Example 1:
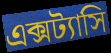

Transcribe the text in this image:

এক্সট্যাসি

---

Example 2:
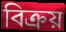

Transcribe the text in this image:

বিক্রয়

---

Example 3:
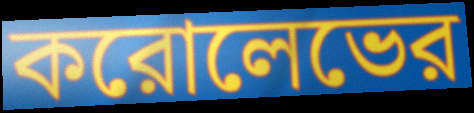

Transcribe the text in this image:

করোলেভের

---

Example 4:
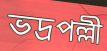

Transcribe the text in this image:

ভদ্রপল্লী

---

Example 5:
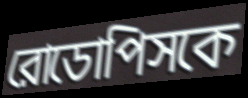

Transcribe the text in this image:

রোডোপিসকে